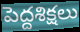
పెద్దశిక్షలు